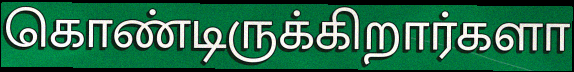
கொண்டிருக்கிறார்களா